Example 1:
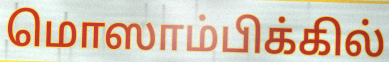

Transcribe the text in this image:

மொஸாம்பிக்கில்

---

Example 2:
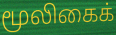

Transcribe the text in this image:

மூலிகைக்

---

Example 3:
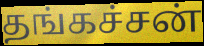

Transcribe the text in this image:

தங்கச்சன்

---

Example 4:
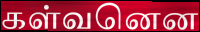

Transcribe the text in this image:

கள்வனென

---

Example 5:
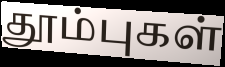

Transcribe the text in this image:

தூம்புகள்